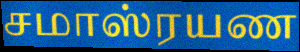
சமாஸ்ரயண